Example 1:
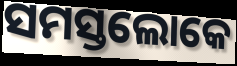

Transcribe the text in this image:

ସମସ୍ତଲୋକେ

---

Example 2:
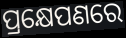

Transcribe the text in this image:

ପ୍ରକ୍ଷେପଣରେ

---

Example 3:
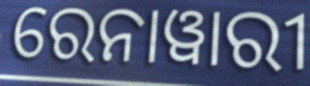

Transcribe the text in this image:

ରେନାୱାରୀ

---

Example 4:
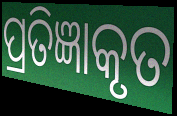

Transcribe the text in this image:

ପ୍ରତିଜ୍ଞାକୃତ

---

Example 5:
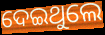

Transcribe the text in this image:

ଦେଇଥୁଲେ